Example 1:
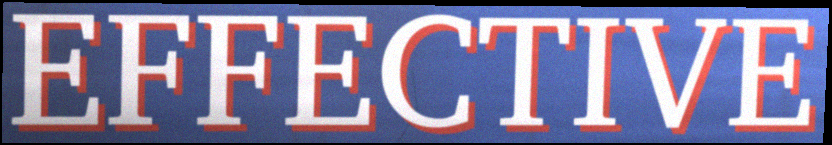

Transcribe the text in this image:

EFFECTIVE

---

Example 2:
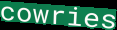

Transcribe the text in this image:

cowries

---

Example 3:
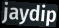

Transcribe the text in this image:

jaydip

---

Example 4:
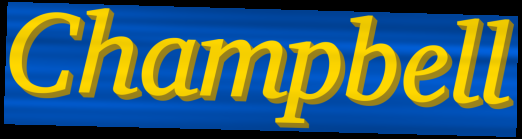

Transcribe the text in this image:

Champbell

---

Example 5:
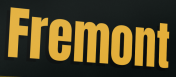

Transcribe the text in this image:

Fremont